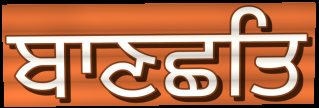
ਬਾਣਛਤਿ